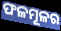
ଫଳମୂଳର